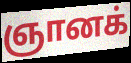
ஞானக்